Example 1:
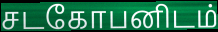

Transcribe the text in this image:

சடகோபனிடம்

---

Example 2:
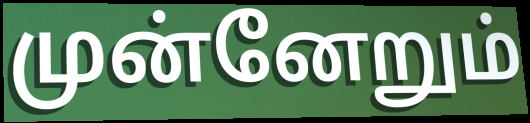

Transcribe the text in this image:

முன்னேறும்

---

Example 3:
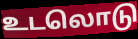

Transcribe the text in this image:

உடலொடு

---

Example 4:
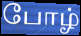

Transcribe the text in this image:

போழ்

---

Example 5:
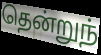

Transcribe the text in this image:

தென்றுந்